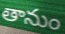
తానుం